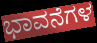
ಭಾವನೆಗಳ